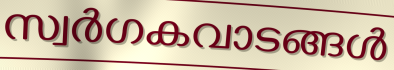
സ്വർഗകവാടങ്ങൾ